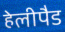
हेलीपैड